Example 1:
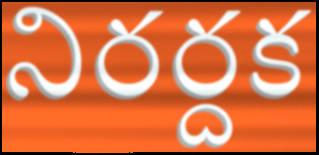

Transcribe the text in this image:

నిరర్దక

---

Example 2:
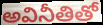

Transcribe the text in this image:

అవినీతితో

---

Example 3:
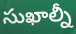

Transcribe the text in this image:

సుఖాల్నీ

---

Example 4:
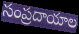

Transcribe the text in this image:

సంప్రదాయాల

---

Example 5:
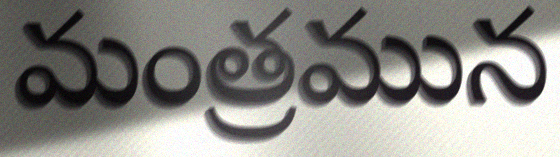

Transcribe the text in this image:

మంత్రమున